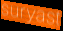
suryast